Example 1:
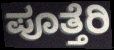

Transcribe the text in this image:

ಪೂತ್ತೆರಿ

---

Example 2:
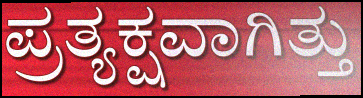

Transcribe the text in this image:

ಪ್ರತ್ಯಕ್ಷವಾಗಿತ್ತು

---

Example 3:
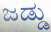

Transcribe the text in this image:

ಜಡ್ಡು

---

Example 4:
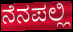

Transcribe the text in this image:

ನೆನಪಲ್ಲಿ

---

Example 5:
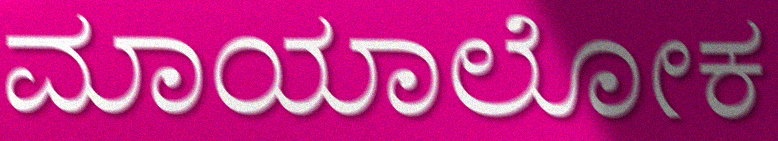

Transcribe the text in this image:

ಮಾಯಾಲೋಕ